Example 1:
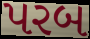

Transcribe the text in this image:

પરબ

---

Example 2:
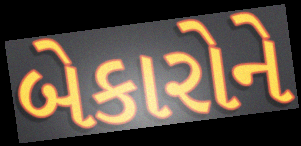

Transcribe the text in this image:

બેકારોને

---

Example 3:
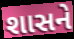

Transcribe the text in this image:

શાસને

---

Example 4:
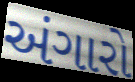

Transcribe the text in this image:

અંગારો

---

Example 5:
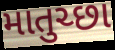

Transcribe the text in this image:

માતુચ્છા